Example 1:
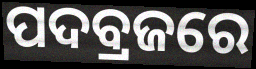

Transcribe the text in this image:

ପଦବ୍ରଜରେ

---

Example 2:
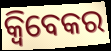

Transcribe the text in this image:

କ୍ୱିବେକର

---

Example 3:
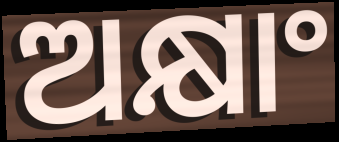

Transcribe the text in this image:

ଅକ୍ଷାଂ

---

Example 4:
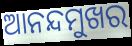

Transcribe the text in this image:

ଆନନ୍ଦମୁଖର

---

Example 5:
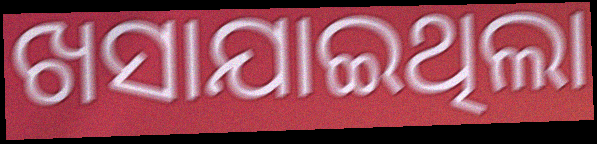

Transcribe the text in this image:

ଖସାଯାଇଥିଲା